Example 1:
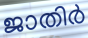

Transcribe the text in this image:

ജാതിർ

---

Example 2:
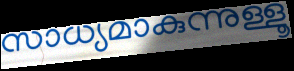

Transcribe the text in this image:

സാധ്യമാകുന്നുള്ളൂ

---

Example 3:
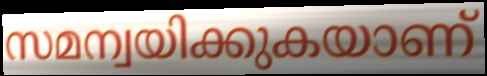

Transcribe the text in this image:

സമന്വയിക്കുകയാണ്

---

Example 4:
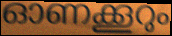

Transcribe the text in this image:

ഓണക്കൂറും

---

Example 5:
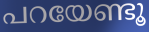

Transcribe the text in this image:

പറയേണ്ടൂ